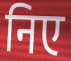
निए